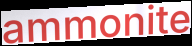
ammonite